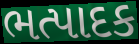
ભત્પાદક